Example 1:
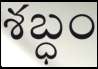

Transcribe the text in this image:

శబ్ధం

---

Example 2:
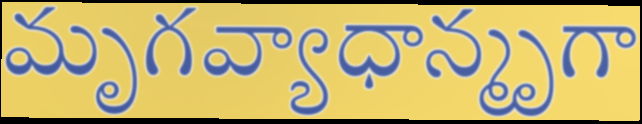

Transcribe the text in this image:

మృగవ్యాధాన్మృగా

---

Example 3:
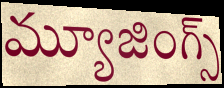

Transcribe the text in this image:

మ్యూజింగ్స్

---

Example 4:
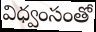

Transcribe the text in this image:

విధ్వంసంతో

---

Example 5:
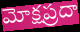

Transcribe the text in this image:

మోక్షప్రదా